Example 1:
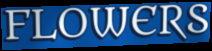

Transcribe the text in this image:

FLOWERS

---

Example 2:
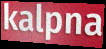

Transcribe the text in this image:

kalpna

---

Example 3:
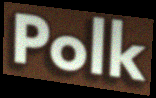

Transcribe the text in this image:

Polk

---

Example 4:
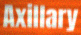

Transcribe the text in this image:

Axillary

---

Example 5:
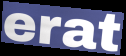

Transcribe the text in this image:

erat